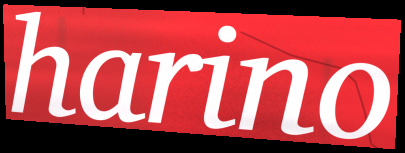
harino